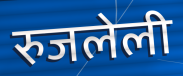
रुजलेली